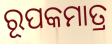
ରୂପକମାତ୍ର